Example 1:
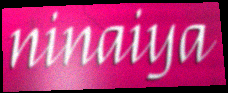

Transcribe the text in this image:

ninaiya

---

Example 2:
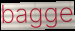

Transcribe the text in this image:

bagge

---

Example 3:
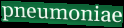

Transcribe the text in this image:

pneumoniae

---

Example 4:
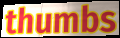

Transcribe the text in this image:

thumbs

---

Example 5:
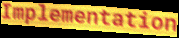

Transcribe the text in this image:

Implementation